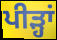
ਪੀੜ੍ਹਾਂ